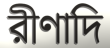
রীণাদি